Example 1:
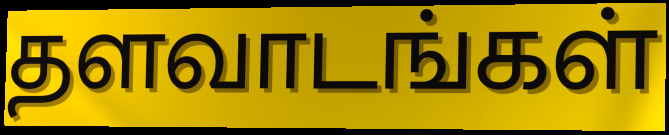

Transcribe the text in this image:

தளவாடங்கள்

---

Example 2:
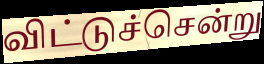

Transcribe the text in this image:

விட்டுச்சென்று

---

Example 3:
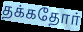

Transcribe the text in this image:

தக்கதோர்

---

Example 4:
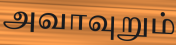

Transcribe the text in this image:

அவாவுறும்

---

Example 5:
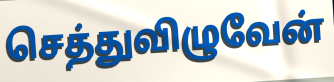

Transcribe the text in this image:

செத்துவிழுவேன்